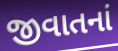
જીવાતનાં